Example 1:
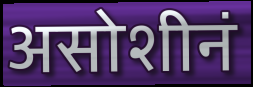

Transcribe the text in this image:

असोशीनं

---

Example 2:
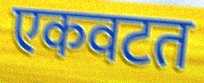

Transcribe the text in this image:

एकवटत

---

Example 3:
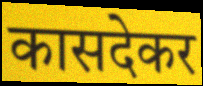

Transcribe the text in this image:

कासदेकर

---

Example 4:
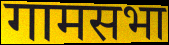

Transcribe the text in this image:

गामसभा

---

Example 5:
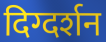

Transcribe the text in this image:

दिग्दर्शन